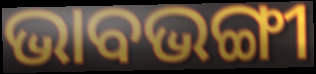
ଭାବଭଙ୍ଗୀ